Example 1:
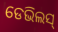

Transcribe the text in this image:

ଡେଭିଲସ୍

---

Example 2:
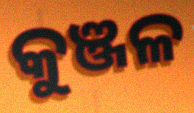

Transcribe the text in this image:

କୁଞ୍ଜଳ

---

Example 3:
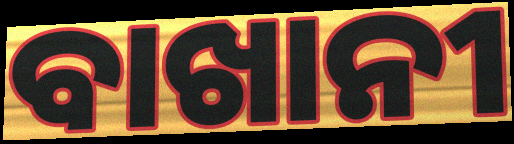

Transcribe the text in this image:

ବାଖାନୀ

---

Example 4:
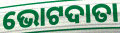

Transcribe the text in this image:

ଭୋଟଦାତା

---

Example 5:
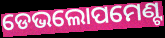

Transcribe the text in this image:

ଡେଭଲୋପମେଣ୍ଟ